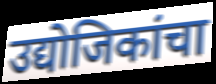
उद्योजिकांचा